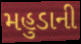
મહુડાની